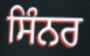
ਸਿੰਨਰ